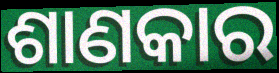
ଶାଣକାର